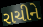
રાચીને